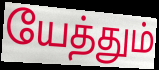
யேத்தும்